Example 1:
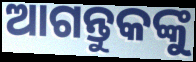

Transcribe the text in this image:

ଆଗନ୍ତୁକଙ୍କୁ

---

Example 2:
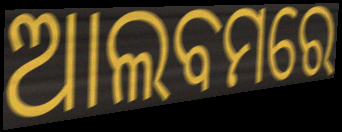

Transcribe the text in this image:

ଆଲବମରେ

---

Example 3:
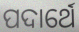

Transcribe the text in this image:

ପଦାର୍ଥେ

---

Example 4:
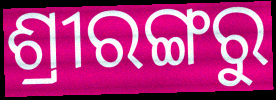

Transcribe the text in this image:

ଶ୍ରୀରଙ୍ଗରୁ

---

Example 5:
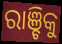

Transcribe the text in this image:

ରାଞ୍ଚିକୁ